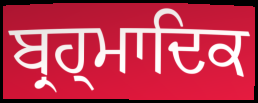
ਬ੍ਰਹ੍ਮਾਦਿਕ